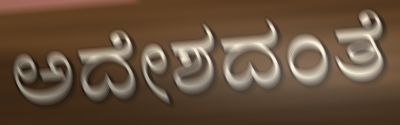
ಅದೇಶದಂತೆ